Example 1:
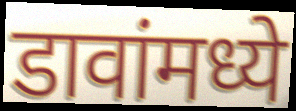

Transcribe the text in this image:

डावांमध्ये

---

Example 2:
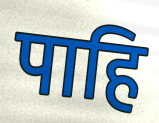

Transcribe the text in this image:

पाहि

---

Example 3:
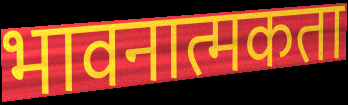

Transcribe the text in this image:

भावनात्मकता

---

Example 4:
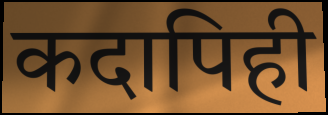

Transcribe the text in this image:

कदापिही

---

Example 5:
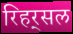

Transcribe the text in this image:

रिहर्सल